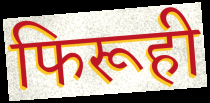
फिरूही